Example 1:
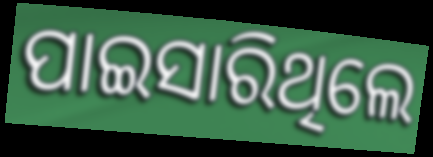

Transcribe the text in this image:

ପାଇସାରିଥିଲେ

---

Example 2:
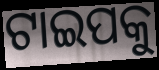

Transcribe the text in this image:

ଟାଇପକୁ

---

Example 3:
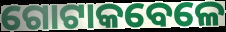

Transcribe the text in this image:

ଗୋଟାକବେଳେ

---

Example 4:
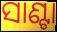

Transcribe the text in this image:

ସାଣ୍ଟା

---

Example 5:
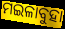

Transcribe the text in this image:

ମଇଳାବୁହା